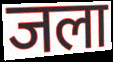
जला